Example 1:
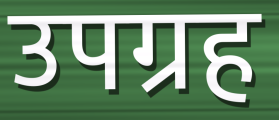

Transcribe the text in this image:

उपग्रह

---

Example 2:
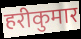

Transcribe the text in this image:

हरीकुमार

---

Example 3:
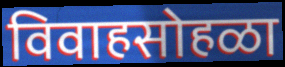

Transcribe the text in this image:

विवाहसोहळा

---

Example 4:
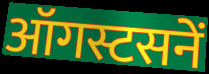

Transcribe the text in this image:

ऑगस्टसनें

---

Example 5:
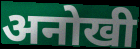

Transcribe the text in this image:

अनोखी